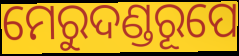
ମେରୁଦଣ୍ଡରୂପେ